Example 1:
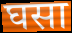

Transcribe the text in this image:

घसा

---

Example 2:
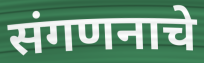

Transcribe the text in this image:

संगणनाचे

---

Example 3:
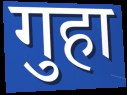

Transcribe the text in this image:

गुहा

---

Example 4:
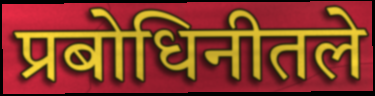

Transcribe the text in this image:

प्रबोधिनीतले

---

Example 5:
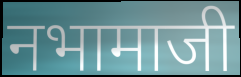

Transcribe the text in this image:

नभामाजी